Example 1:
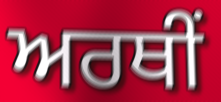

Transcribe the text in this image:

ਅਰਥੀਂ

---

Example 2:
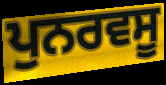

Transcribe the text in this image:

ਪੁਨਰਵਸੂ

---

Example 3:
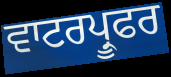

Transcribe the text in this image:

ਵਾਟਰਪ੍ਰੂਫਰ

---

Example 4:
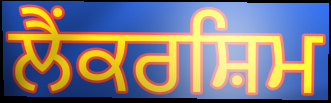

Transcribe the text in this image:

ਲੈਂਕਰਸ਼ਿਮ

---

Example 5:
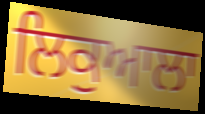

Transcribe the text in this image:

ਲਿਕੁਆਲਾ